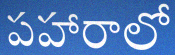
పహారాలో